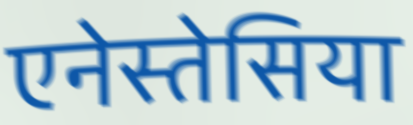
एनेस्तेसिया